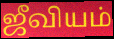
ஜீவியம்